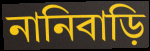
নানিবাড়ি